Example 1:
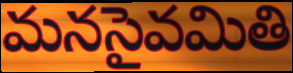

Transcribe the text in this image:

మనసైవమితి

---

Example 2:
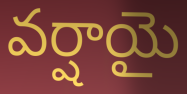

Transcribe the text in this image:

వర్షాయై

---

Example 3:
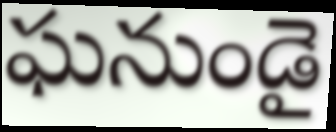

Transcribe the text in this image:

ఘనుండై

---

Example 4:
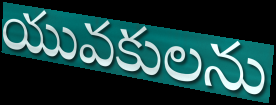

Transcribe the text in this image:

యువకులను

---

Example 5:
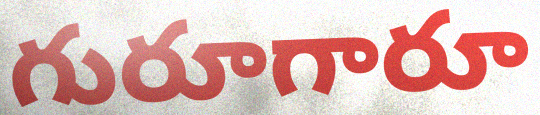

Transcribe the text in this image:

గురూగారూ